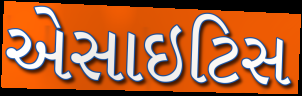
એસાઇટિસ